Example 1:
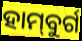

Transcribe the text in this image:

ହାମ୍‌ବୁର୍ଗ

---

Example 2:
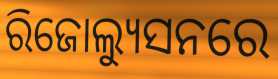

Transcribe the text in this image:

ରିଜୋଲ୍ୟୁସନରେ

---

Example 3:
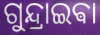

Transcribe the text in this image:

ଗୁନ୍ଦ୍ରାଇଵା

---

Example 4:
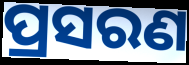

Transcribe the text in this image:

ପ୍ରସରଣ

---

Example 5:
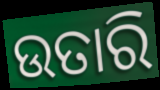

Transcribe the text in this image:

ଉତାରି